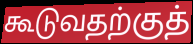
கூடுவதற்குத்